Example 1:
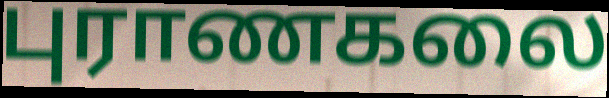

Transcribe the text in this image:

புராணகலை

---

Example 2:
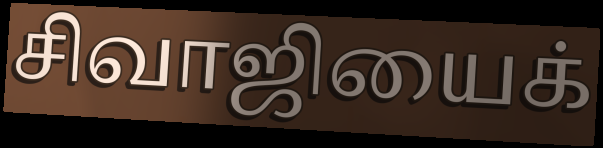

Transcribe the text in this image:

சிவாஜியைக்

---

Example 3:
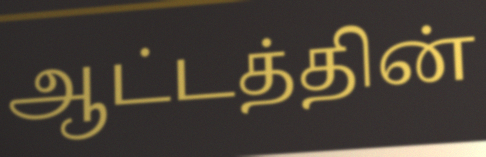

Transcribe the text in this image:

ஆட்டத்தின்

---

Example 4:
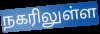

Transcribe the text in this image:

நகரிலுள்ள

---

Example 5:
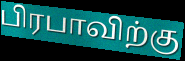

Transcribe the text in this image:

பிரபாவிற்கு